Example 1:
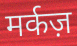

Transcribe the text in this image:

मर्कज़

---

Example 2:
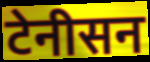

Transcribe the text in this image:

टेनीसन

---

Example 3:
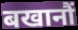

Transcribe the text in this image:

बखानौं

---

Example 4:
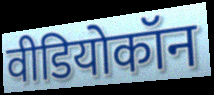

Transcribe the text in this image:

वीडियोकॉन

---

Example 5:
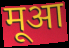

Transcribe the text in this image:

मूआ